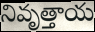
నివృత్తాయ